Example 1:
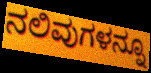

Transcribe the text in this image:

ನಲಿವುಗಳನ್ನೂ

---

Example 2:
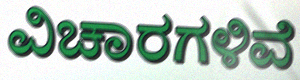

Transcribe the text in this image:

ವಿಚಾರಗಳಿವೆ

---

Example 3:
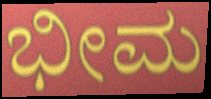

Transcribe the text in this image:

ಭೀಮ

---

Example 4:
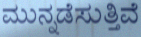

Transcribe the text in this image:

ಮುನ್ನಡೆಸುತ್ತಿವೆ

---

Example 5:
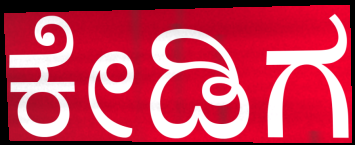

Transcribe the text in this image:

ಕೇಡಿಗ